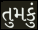
તુમકું